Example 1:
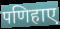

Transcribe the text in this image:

पणिहाए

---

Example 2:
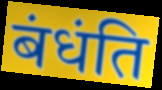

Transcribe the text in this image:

बंधंति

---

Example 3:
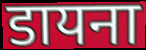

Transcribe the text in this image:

डायना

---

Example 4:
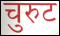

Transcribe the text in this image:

चुरुट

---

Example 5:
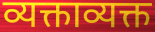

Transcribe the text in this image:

व्यक्ताव्यक्त